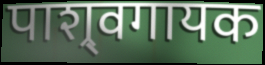
पाश्र्वगायक